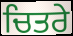
ਚਿਤਰੇ